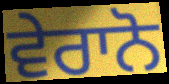
ਵੇਰਾਨੋ